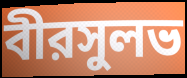
বীরসুলভ